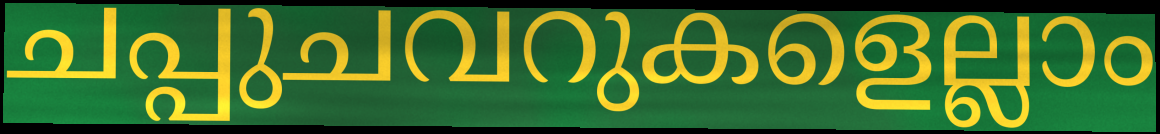
ചപ്പുചവറുകളെല്ലാം